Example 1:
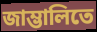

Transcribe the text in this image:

জাম্ভালিতে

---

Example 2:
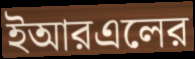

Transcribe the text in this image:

ইআরএলের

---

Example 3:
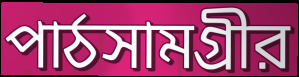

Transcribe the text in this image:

পাঠসামগ্রীর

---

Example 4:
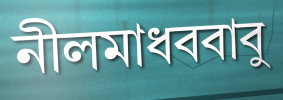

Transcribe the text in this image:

নীলমাধববাবু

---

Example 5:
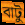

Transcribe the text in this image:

বাটু